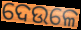
ଦେଉଳେ